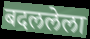
बदललेला